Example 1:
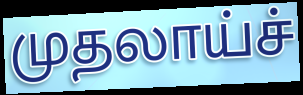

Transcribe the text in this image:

முதலாய்ச்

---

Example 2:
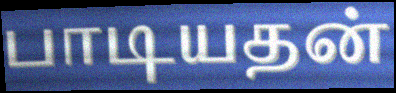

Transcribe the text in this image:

பாடியதன்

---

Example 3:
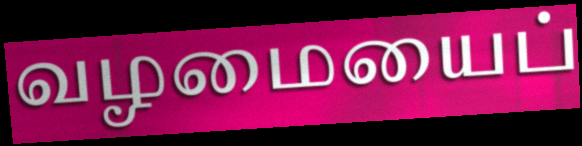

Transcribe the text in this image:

வழமையைப்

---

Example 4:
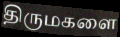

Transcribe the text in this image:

திருமகளை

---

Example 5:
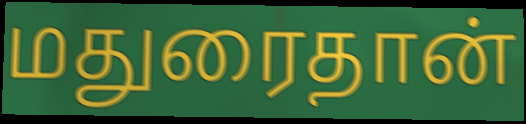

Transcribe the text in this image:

மதுரைதான்